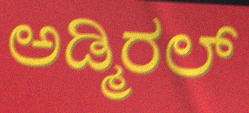
ಅಡ್ಮಿರಲ್